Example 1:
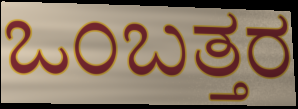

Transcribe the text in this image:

ಒಂಬತ್ತರ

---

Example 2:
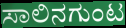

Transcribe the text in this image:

ಸಾಲಿನಗುಂಟ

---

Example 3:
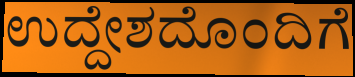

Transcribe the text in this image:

ಉದ್ದೇಶದೊಂದಿಗೆ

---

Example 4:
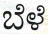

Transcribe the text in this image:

ಬೆಳೆ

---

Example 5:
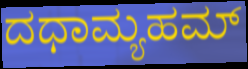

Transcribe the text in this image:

ದಧಾಮ್ಯಹಮ್